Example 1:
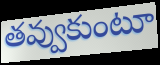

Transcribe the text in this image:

తవ్వుకుంటూ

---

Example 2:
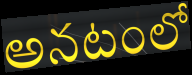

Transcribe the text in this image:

అనటంలో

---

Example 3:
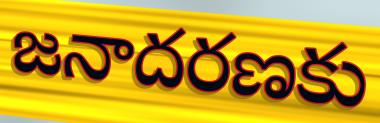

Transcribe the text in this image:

జనాదరణకు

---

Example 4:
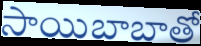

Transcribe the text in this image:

సాయిబాబాతో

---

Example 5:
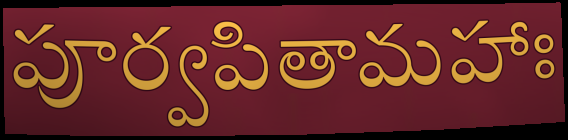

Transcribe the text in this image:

పూర్వపితామహాః